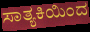
ಸಾತ್ಯಕಿಯಿಂದ